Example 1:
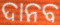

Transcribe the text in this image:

ଦାନବ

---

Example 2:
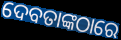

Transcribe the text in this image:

ଦେବତାଙ୍କଠାରେ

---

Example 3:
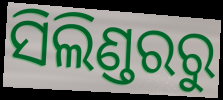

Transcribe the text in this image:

ସିଲିଣ୍ଡରରୁ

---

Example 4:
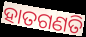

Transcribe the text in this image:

ହାତଗଣତି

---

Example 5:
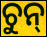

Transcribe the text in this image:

ଚୁନ୍